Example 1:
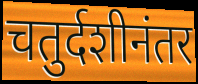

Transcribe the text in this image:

चतुर्दशीनंतर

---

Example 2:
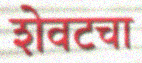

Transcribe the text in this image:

शेवटचा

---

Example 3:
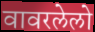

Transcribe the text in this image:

वावरलेलो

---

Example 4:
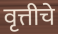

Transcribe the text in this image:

वृत्तीचे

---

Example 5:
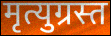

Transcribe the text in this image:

मृत्युग्रस्त